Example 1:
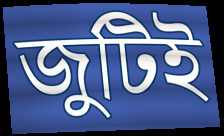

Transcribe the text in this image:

জুটিই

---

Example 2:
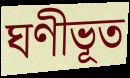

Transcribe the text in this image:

ঘণীভূত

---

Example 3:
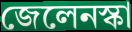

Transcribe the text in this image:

জেলেনস্কা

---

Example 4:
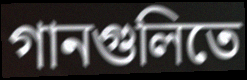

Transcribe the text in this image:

গানগুলিতে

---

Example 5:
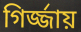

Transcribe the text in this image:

গির্জ্জায়